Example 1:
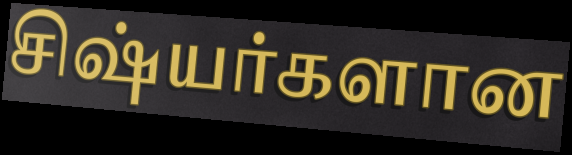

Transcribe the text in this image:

சிஷ்யர்களான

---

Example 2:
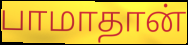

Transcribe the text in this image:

பாமாதான்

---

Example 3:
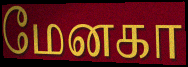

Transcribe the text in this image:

மேனகா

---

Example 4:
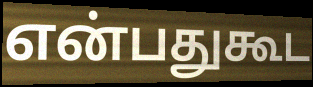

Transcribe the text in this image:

என்பதுகூட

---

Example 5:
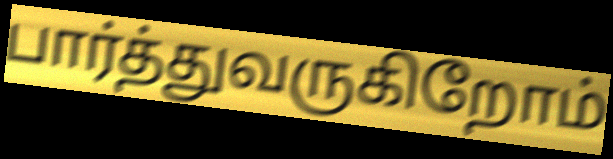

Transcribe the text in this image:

பார்த்துவருகிறோம்